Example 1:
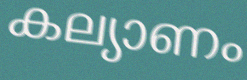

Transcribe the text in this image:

കല്യാണം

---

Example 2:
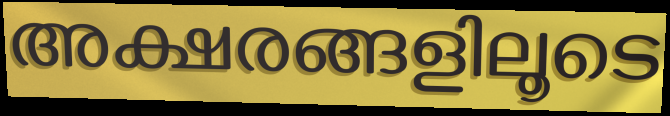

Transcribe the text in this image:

അക്ഷരങ്ങളിലൂടെ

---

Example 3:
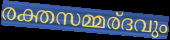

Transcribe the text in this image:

രക്തസമ്മര്ദവും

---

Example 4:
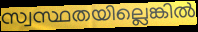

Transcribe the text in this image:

സ്വസ്ഥതയില്ലെങ്കിൽ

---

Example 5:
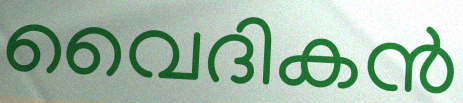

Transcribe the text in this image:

വൈദികൻ